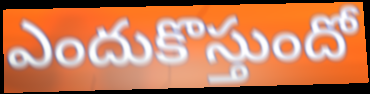
ఎందుకొస్తుందో